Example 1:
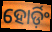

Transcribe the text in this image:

ହୋର୍ଡ଼ିଂ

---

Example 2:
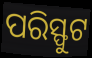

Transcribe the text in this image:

ପରିସ୍ଫୁଟ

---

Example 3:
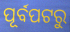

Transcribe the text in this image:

ପୂର୍ବପଟରୁ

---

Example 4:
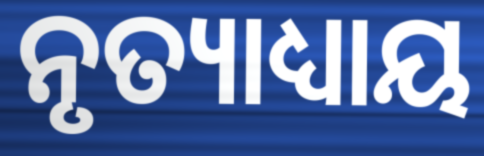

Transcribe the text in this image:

ନୃତ୍ୟାଧ୍ୟାୟ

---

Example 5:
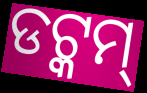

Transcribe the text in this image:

ଡଟ୍କମ୍